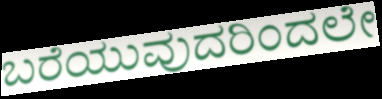
ಬರೆಯುವುದರಿಂದಲೇ